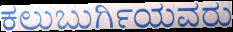
ಕಲುಬುರ್ಗಿಯವರು